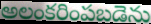
అలంకరింపబడెను